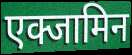
एक्जामिन